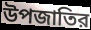
উপজাতির